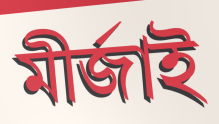
মীর্জাই